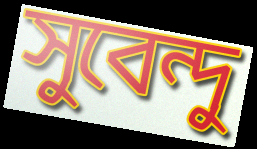
সুবেন্দু